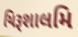
યિરૂશાલમિ